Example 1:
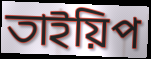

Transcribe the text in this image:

তাইয়িপ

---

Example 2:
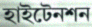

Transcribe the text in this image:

হাইটেনশন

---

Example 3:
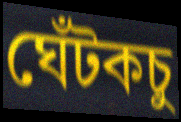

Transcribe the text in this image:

ঘেঁটকচু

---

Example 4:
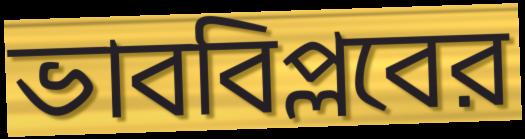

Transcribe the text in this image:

ভাববিপ্লবের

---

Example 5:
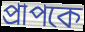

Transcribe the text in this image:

প্রাপকে